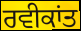
ਰਵੀਕਾਂਤ